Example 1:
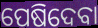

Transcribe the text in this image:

ପେଷିଦେବା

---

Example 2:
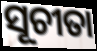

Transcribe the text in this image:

ସୂଚୀତା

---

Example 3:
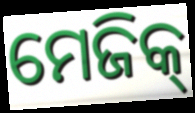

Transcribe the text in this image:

ମେଜିକ୍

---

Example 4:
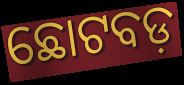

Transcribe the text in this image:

ଛୋଟବଡ଼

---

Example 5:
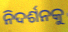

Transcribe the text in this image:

ନିଦର୍ଶନକୁ